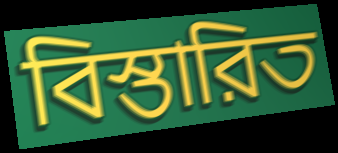
বিস্তারিত